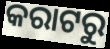
କରାଟରୁ